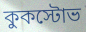
কুকস্টোভ